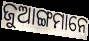
ଜୁଆଙ୍ଗମାନେ